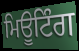
ਮਿਊਟਿੰਗ